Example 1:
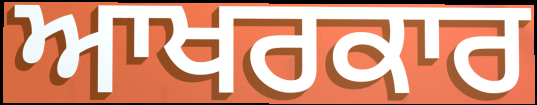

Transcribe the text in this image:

ਆਖਰਕਾਰ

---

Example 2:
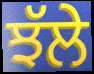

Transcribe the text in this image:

ਝੱਲੇ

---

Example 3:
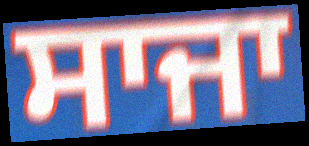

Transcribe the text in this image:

ਸਾਜਾ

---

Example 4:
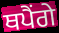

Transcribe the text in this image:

ਥਪੈਂਗੇ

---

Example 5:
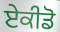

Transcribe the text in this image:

ਏਕੀਡੋ